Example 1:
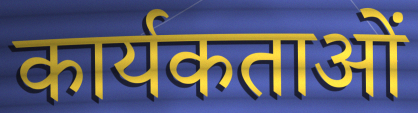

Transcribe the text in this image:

कार्यकताओं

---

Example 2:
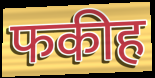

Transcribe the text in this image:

फकीह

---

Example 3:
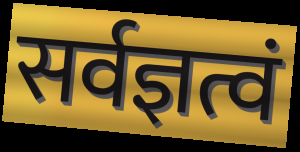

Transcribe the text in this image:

सर्वज्ञत्वं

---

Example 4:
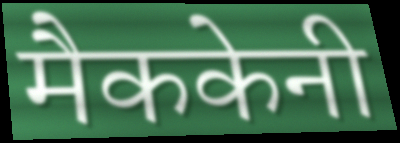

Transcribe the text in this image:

मैककेनी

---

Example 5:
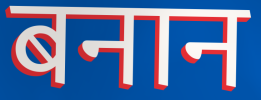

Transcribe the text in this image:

बनान